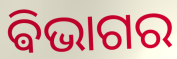
ଵିଭାଗର